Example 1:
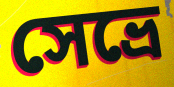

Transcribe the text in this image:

সেভ্রে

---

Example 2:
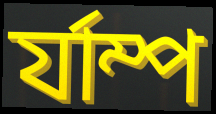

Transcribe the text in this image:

র্যাম্প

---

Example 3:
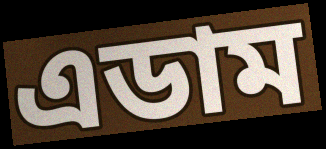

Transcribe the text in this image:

এডাম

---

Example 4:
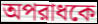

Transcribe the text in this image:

অপরাধকে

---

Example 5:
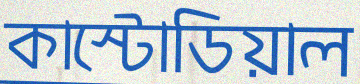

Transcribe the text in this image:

কাস্টোডিয়াল